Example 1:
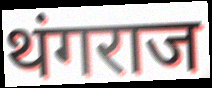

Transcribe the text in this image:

थंगराज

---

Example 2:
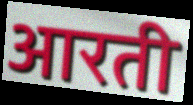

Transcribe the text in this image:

आरती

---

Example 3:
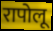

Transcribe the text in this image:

रापोलू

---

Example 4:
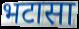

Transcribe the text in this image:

भटासा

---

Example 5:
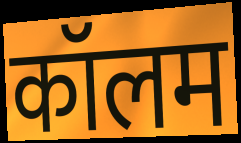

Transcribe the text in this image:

कॉलम